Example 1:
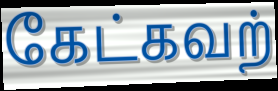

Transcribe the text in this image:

கேட்கவற்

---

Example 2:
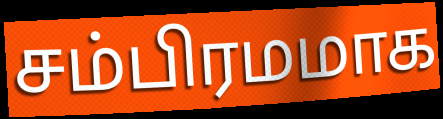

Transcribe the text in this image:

சம்பிரமமாக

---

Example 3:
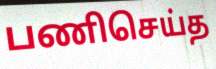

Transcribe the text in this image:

பணிசெய்த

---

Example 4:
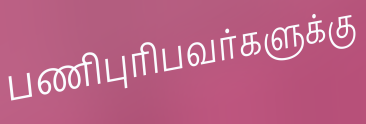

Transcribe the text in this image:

பணிபுரிபவர்களுக்கு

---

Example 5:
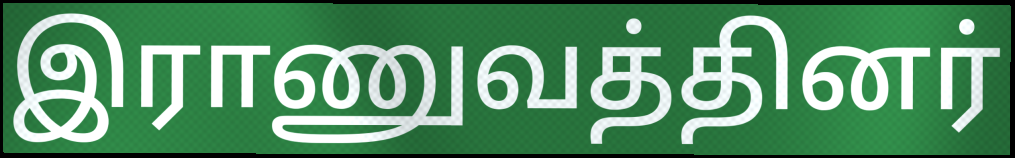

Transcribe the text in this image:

இராணுவத்தினர்